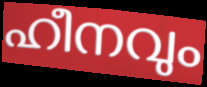
ഹീനവും